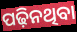
ପଢ଼ିନଥିବା